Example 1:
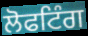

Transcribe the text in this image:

ਲੋਫਟਿੰਗ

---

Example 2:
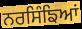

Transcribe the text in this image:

ਨਰਸਿੰਙਿਆਂ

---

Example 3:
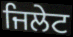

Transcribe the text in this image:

ਜਿਲੇਟ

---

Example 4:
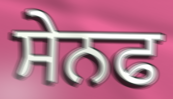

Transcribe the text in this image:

ਸੇਨਫ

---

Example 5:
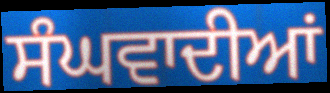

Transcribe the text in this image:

ਸੰਘਵਾਦੀਆਂ